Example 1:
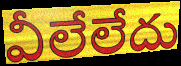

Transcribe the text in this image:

వీలేలేదు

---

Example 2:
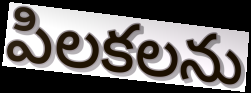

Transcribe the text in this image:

పిలకలను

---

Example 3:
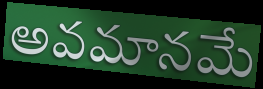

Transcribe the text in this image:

అవమానమే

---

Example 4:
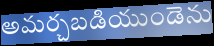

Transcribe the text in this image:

అమర్చబడియుండెను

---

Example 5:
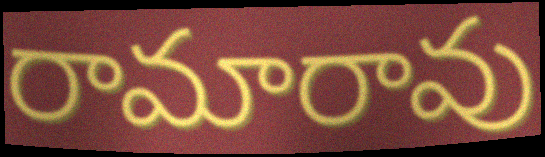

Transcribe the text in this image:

రామారావు